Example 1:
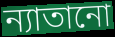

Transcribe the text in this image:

ন্যাতানো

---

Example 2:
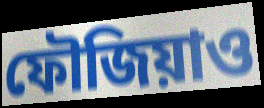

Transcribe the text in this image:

ফৌজিয়াও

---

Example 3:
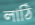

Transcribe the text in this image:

লাঠি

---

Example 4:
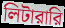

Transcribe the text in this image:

লিটারারি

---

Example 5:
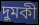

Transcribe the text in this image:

দুমকী